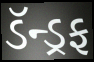
ડૅન્ડ્રફ